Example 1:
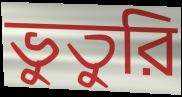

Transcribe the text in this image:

ভুতুরি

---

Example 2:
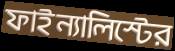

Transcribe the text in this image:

ফাইন্যালিস্টের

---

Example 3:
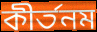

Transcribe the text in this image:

কীর্তনম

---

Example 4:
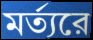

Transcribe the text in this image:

মর্ত্যরে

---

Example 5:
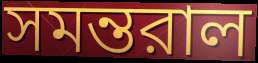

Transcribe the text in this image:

সমন্তরাল